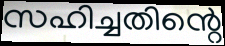
സഹിച്ചതിന്റെ